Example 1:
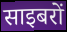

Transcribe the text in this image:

साइबरों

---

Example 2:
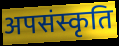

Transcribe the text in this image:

अपसंस्कृति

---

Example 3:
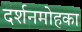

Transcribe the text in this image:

दर्शनमोहका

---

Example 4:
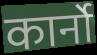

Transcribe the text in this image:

कार्नो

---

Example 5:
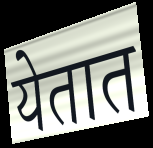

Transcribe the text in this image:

येतात